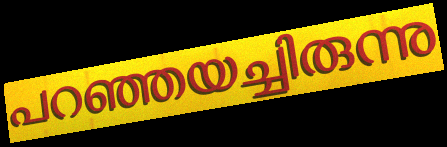
പറഞ്ഞയച്ചിരുന്നു